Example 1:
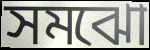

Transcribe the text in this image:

সমঝো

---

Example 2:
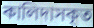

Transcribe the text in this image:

কালিদাসকৃত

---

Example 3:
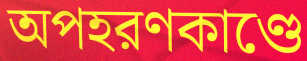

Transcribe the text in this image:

অপহরণকাণ্ডে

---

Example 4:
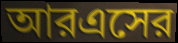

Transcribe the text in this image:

আরএসের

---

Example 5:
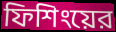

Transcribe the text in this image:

ফিশিংয়ের